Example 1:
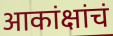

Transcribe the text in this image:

आकांक्षांचं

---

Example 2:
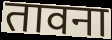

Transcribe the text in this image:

तावना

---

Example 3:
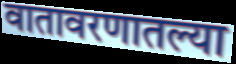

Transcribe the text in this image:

वातावरणातल्या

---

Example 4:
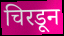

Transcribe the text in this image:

चिरडून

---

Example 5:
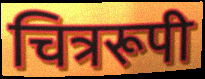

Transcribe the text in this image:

चित्ररूपी